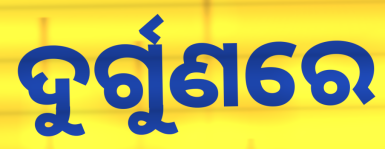
ଦୁର୍ଗୁଣରେ